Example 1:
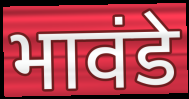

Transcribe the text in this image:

भावंडे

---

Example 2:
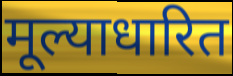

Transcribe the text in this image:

मूल्याधारित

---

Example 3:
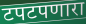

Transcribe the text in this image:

टपटपणारा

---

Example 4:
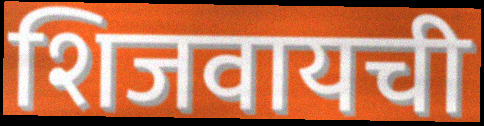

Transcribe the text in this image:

शिजवायची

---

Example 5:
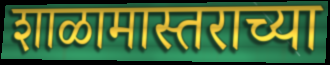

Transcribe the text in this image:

शाळामास्तराच्या